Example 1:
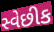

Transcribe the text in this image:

સ્વેછીક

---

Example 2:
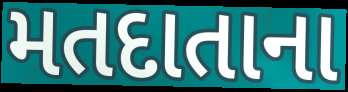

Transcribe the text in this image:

મતદાતાના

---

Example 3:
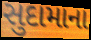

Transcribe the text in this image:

સુદામાના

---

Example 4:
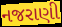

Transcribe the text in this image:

નજરાણી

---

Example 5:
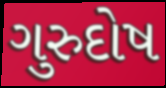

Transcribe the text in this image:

ગુરુદોષ